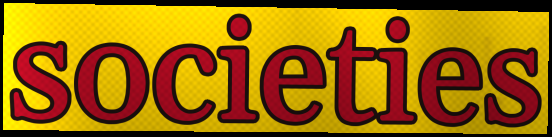
societies